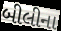
બીલીના